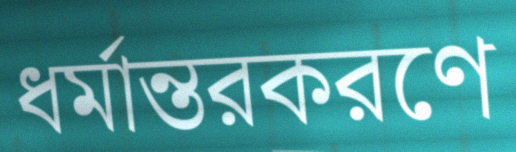
ধর্মান্তরকরণে